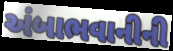
અંબાભવાનીની